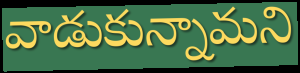
వాడుకున్నామని